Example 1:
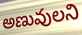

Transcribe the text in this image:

అణువులని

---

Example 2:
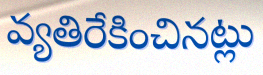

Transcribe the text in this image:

వ్యతిరేకించినట్లు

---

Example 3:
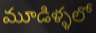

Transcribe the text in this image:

మూడిళ్ళలో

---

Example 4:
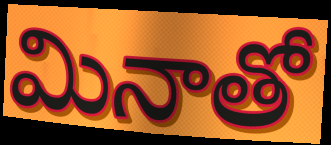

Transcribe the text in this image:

మినాతో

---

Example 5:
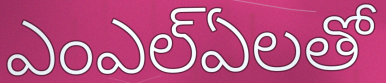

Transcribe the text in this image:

ఎంఎల్ఏలతో